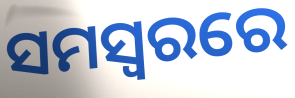
ସମସ୍ବରରେ